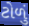
ટોળું